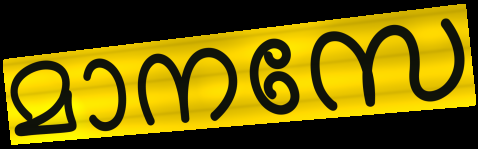
മാനസേ